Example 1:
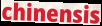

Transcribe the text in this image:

chinensis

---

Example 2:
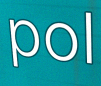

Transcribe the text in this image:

pol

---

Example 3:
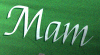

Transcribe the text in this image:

Mam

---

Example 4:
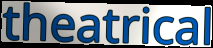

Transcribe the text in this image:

theatrical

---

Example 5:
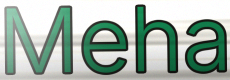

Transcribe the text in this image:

Meha